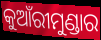
କୁଆଁରୀମୁଣ୍ଡାର